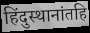
हिंदुस्थानांतहि